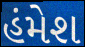
હંમેશ